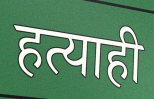
हत्याही